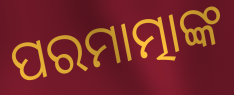
ପରମାତ୍ମାଙ୍କ